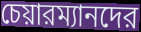
চেয়ারম্যানদের